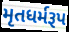
મૃતધર્મરૂપ